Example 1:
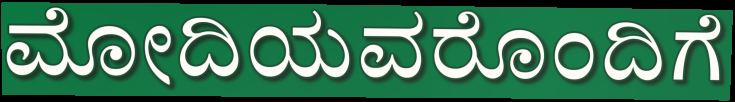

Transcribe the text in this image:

ಮೋದಿಯವರೊಂದಿಗೆ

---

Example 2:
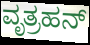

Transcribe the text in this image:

ವೃತ್ರಹನ್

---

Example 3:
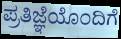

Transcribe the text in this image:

ಪ್ರತಿಜ್ಞೆಯೊಂದಿಗೆ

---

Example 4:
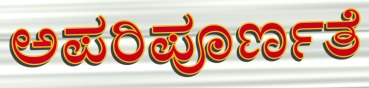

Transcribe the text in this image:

ಅಪರಿಪೂರ್ಣತೆ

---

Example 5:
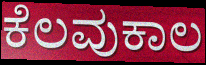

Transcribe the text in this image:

ಕೆಲವುಕಾಲ